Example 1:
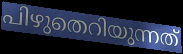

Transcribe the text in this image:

പിഴുതെറിയുന്നത്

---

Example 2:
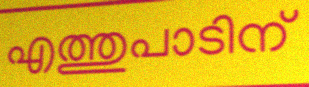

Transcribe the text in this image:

എത്തുപാടിന്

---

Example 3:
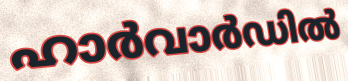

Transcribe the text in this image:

ഹാർവാർഡിൽ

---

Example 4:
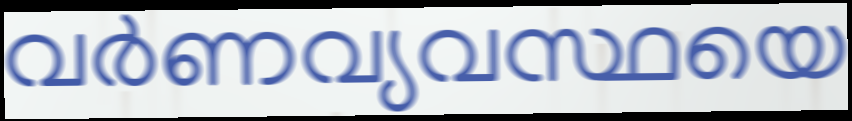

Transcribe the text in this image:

വർണവ്യവസ്ഥയെ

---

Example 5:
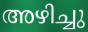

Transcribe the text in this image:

അഴിച്ചു